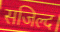
सजिल्द